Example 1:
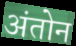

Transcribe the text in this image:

अंतोन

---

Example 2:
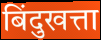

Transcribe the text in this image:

बिंदुखत्ता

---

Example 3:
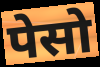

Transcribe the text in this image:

पेसो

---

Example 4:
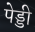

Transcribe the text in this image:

पेड्डी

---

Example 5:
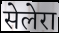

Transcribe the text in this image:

सेलेरा